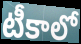
టీకాలో